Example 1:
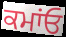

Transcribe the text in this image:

ਕਮਾਂਓ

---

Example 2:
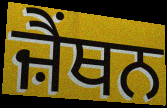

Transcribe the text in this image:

ਜ਼ੈਂਥਨ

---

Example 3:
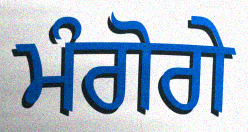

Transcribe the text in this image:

ਮੰਗੋਗੇ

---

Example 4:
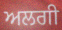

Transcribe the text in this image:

ਅਲਗੀ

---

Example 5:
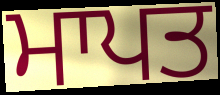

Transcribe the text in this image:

ਮਾਪਤ